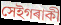
সেইগৰাকী